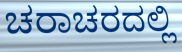
ಚರಾಚರದಲ್ಲಿ